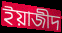
ইয়াজীদ